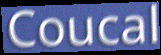
Coucal